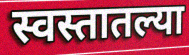
स्वस्तातल्या